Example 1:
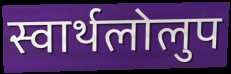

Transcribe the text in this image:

स्वार्थलोलुप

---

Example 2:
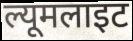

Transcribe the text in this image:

ल्यूमलाइट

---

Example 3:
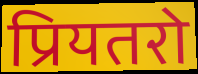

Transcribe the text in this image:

प्रियतरो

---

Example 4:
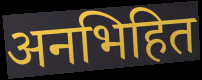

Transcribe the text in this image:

अनभिहित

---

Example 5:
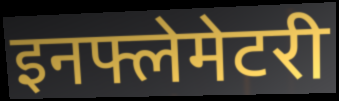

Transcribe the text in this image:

इनफ्लेमेटरी